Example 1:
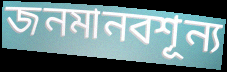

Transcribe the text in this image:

জনমানবশূন্য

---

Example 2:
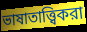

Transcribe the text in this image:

ভাষাতাত্ত্বিকরা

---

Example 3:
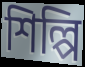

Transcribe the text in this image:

শিল্পি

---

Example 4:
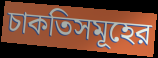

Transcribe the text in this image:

চাকতিসমূহের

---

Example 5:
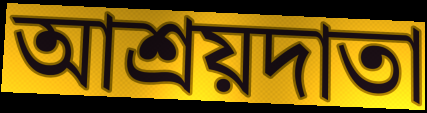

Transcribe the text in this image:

আশ্রয়দাতা